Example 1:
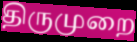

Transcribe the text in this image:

திருமுறை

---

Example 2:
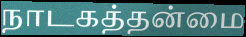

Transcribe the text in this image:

நாடகத்தன்மை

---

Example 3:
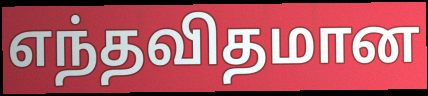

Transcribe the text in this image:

எந்தவிதமான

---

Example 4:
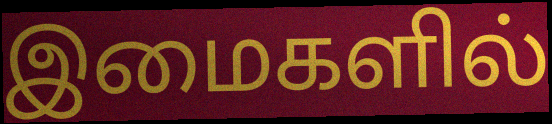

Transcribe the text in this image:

இமைகளில்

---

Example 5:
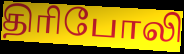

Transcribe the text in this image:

திரிபோலி